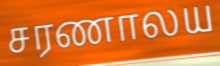
சரணாலய